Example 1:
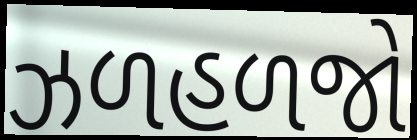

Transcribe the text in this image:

ઝળહળજો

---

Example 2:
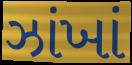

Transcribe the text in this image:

ઝાંખાં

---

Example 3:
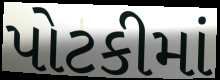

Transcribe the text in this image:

પોટકીમાં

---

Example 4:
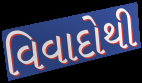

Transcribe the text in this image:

વિવાદોથી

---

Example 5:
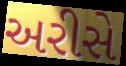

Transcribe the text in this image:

અરીસે